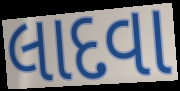
લાદવા